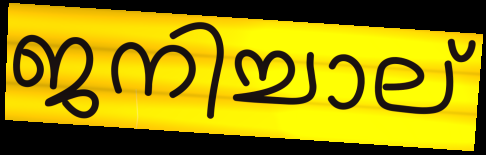
ജനിച്ചാല്